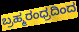
ಬ್ರಹ್ಮರಂಧ್ರದಿಂದ